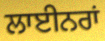
ਲਾਈਨਰਾਂ